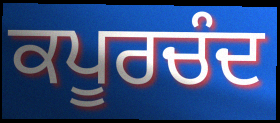
ਕਪੂਰਚੰਦ